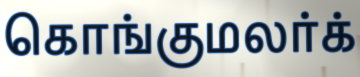
கொங்குமலர்க்